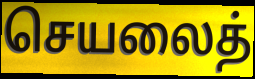
செயலைத்